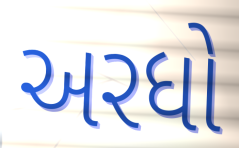
અરધો